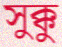
সুক্কু